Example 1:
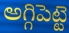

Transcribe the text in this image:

అగ్గిపెట్టె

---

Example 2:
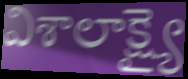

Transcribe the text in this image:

విశాలాక్ష్యై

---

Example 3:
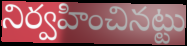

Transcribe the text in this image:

నిర్వహించినట్టు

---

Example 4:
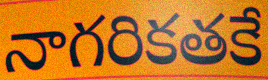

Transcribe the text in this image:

నాగరికతకే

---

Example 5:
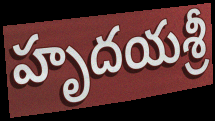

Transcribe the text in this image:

హృదయశ్రీ